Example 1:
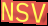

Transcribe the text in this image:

NSV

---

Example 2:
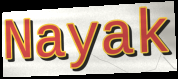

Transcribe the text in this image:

Nayak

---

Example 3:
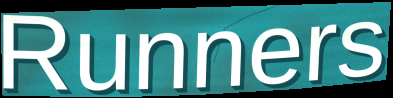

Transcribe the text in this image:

Runners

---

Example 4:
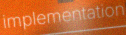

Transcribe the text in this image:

implementation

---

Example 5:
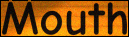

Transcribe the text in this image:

Mouth